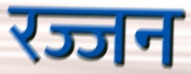
रज्जन